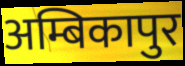
अम्बिकापुर